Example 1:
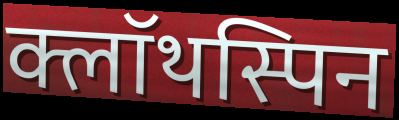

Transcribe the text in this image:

क्लॉथस्पिन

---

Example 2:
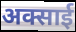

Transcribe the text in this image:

अक्साई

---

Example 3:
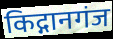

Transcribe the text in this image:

किद्गानगंज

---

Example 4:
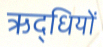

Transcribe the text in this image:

ऋद्धियों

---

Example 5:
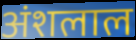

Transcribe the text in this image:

अंशलाल